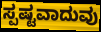
ಸ್ಪಷ್ಟವಾದುವು